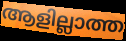
ആളില്ലാത്ത